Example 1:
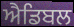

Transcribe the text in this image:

ਐਡਿਬਲ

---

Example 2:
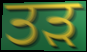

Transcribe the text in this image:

ਤੜ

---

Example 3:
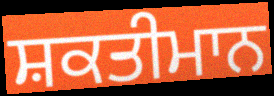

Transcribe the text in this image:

ਸ਼ਕਤੀਮਾਨ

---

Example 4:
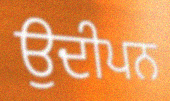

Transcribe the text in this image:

ਉਦੀਪਨ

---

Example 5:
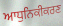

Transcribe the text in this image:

ਆਧੁਨਿਕੀਕਰਣ